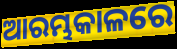
ଆରମ୍ଭକାଳରେ